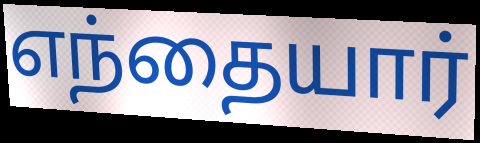
எந்தையார்